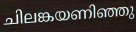
ചിലങ്കയണിഞ്ഞു